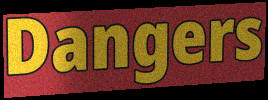
Dangers